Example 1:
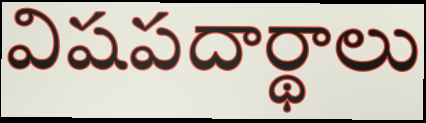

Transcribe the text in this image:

విషపదార్థాలు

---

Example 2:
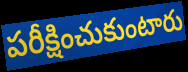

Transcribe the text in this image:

పరీక్షించుకుంటారు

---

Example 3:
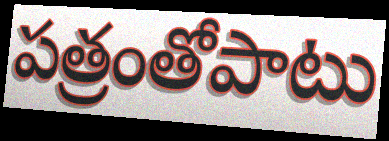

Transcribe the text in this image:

పత్రంతోపాటు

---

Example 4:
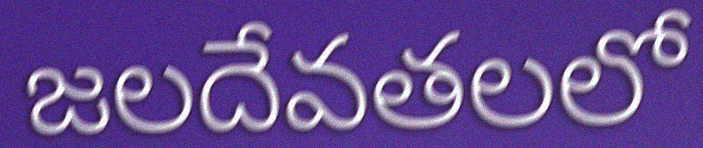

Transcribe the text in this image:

జలదేవతలలో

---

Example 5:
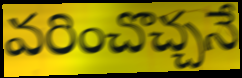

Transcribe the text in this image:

వరించొచ్చనే